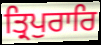
ਤ੍ਰਿਪੁਰਾਰਿ